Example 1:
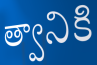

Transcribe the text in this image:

త్వానికి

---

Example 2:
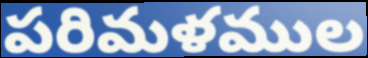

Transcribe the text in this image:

పరిమళముల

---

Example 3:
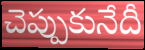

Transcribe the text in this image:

చెప్పుకునేదీ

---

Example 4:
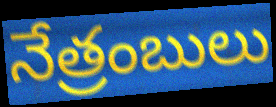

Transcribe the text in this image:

నేత్రంబులు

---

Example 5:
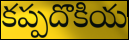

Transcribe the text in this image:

కప్పదొకియ